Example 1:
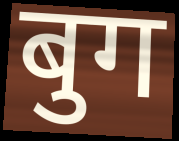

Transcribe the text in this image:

बुग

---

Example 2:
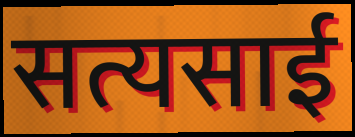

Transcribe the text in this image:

सत्यसाई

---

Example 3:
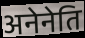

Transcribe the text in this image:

अनेनेति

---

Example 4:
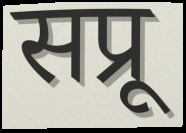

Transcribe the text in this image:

सप्रू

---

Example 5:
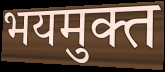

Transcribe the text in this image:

भयमुक्‍त